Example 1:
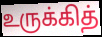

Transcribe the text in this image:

உருக்கித்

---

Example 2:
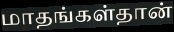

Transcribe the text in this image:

மாதங்கள்தான்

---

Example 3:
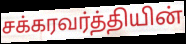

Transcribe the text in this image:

சக்கரவர்த்தியின்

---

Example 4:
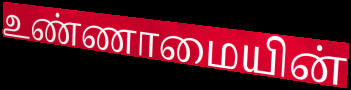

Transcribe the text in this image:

உண்ணாமையின்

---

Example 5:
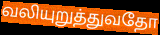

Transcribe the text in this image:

வலியுறுத்துவதோ